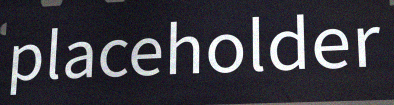
placeholder